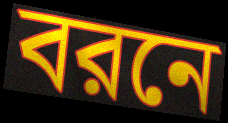
বরনে